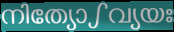
നിത്യോഽവ്യയഃ